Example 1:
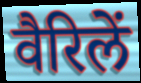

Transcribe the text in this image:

वैरिलें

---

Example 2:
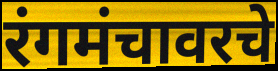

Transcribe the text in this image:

रंगमंचावरचे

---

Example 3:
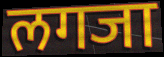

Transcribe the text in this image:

लगजा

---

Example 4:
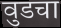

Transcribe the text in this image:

वुडचा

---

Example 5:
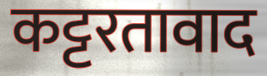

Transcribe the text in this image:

कट्टरतावाद